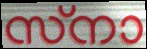
സ്‌നാ